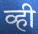
व्ही